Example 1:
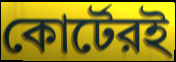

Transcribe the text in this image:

কোর্টেরই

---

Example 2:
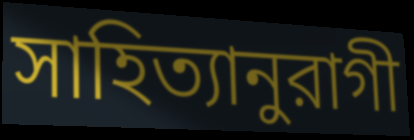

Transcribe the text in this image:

সাহিত্যানুরাগী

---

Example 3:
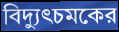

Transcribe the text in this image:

বিদ্যুৎচমকের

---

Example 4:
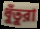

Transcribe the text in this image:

ধুঁতুরা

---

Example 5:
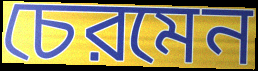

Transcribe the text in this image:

চেরমেন